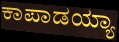
ಕಾಪಾಡಯ್ಯಾ